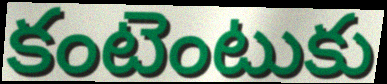
కంటెంటుకు